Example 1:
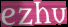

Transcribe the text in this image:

ezhu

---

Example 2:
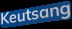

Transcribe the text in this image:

Keutsang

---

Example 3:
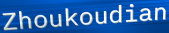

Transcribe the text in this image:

Zhoukoudian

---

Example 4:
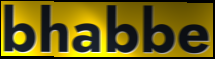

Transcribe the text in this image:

bhabbe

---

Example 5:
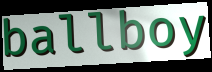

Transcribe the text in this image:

ballboy